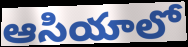
ఆసియాలో